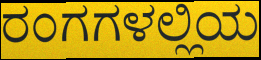
ರಂಗಗಳಲ್ಲಿಯ